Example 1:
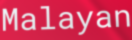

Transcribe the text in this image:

Malayan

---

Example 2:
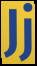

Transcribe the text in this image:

Jj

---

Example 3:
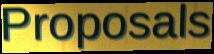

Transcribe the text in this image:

Proposals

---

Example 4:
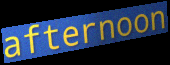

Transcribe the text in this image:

afternoon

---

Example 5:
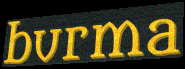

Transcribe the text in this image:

burma